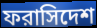
ফরাসিদেশ